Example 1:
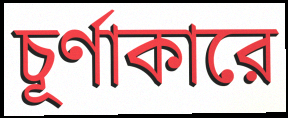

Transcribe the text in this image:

চূর্ণাকারে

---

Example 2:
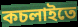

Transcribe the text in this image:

কচলাইতে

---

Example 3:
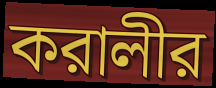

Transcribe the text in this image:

করালীর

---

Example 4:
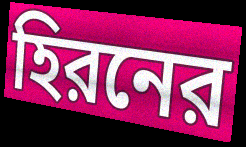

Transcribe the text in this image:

হিরনের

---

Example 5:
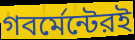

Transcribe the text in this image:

গবর্মেন্টেরই